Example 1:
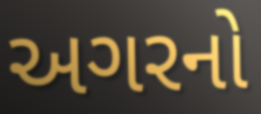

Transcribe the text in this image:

અગરનો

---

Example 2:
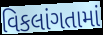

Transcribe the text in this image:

વિકલાંગતામાં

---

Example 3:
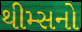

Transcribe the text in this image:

થીમ્સનો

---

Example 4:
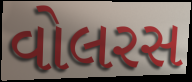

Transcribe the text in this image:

વોલરસ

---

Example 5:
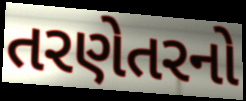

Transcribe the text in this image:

તરણેતરનો